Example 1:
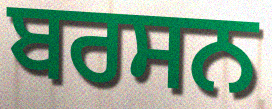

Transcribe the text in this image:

ਬਰਸਨ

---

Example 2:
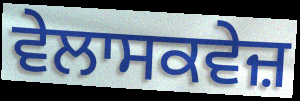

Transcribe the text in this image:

ਵੇਲਾਸਕਵੇਜ਼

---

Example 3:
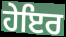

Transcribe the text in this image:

ਹੇਇਰ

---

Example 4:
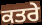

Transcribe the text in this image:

ਕਤਰੇ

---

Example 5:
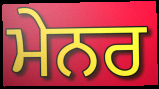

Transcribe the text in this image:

ਮੇਨਰ